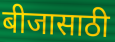
बीजासाठी